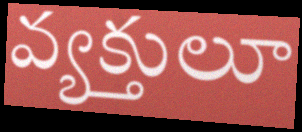
వ్యక్తులూ